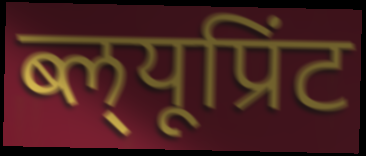
ब्ल्यूप्रिंट